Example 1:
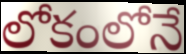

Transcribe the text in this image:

లోకంలోనే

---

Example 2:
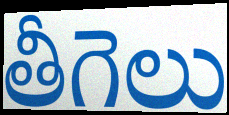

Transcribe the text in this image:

తీగెలు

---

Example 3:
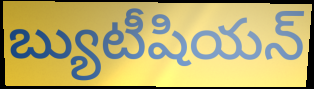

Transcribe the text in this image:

బ్యుటీషియన్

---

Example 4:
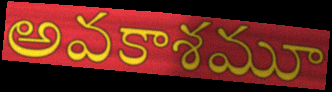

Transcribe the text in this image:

అవకాశమూ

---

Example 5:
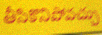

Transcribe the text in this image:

తీసికొనిపోవచ్చు